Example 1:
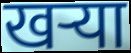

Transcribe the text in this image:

खऱ्या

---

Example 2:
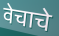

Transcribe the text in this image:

वेचाचे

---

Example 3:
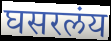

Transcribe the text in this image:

घसरलंय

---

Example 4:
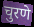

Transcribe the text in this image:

चुरणे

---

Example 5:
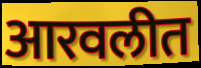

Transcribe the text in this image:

आरवलीत